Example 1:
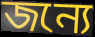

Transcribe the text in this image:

জন্যে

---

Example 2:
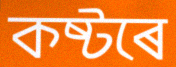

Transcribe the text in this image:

কষ্টৰে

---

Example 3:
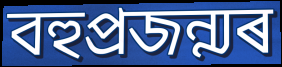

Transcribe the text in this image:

বহুপ্ৰজন্মৰ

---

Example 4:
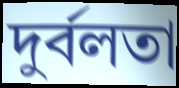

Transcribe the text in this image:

দুৰ্বলতা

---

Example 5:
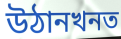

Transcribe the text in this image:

উঠানখনত